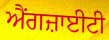
ਐਂਗਜ਼ਾਈਟੀ